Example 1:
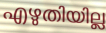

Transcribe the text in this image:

എഴുതിയില്ല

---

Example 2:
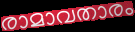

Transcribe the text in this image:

രാമാവതാരം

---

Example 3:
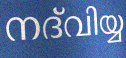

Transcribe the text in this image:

നദ്‌വിയ്യ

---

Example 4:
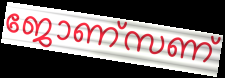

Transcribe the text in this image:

ജോണ്സണ്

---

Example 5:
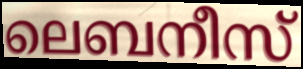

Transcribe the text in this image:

ലെബനീസ്